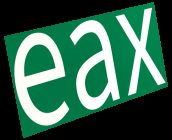
eax